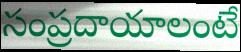
సంప్రదాయాలంటే